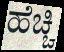
ಹೆಚ್ಚಿ